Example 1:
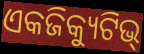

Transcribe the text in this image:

ଏକଜିକ୍ୟୁଟିଭ୍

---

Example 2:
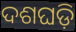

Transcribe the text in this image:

ଦଶଘଡ଼ି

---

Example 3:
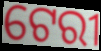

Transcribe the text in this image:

ଟେରୀ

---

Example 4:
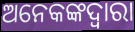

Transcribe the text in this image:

ଅନେକଙ୍କଦ୍ୱାରା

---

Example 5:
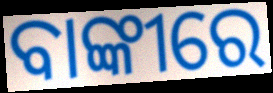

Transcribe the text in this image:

ବାଙ୍କୀରେ